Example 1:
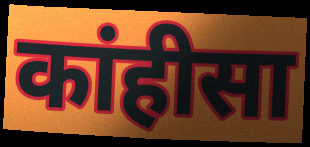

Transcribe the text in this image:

कांहीसा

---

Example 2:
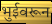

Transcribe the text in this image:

भुईवरून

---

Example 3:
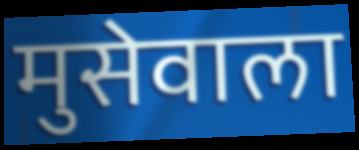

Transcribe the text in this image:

मुसेवाला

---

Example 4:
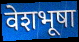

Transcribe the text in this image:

वेशभूषा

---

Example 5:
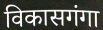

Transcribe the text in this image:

विकासगंगा